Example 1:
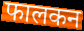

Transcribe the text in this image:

फालकन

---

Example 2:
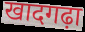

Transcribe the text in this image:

खादगढ़ा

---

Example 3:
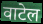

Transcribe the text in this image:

वाटेल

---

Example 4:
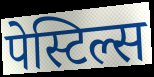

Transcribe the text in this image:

पेस्टिल्स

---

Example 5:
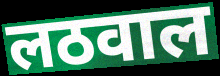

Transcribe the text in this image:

लठवाल